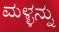
ಮಳ್ಳನ್ನು